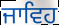
ਜਾਵਿਹ